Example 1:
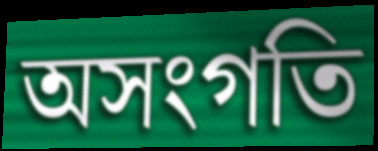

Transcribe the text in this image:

অসংগতি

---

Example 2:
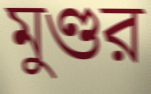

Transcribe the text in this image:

মুণ্ডর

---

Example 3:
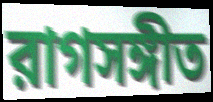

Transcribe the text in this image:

রাগসঙ্গীত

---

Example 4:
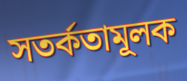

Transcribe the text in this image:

সতর্কতামূলক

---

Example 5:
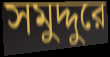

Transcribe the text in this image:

সমুদ্দুরে